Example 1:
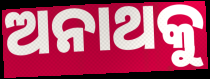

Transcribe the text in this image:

ଅନାଥକୁ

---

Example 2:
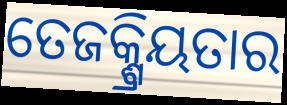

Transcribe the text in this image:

ତେଜକ୍ଶ୍ରିୟତାର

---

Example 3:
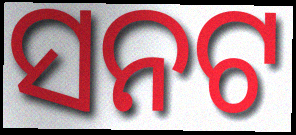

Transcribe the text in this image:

ସନଟ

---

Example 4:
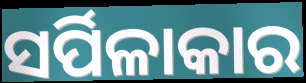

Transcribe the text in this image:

ସର୍ପିଳାକାର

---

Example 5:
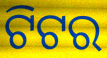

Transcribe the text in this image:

ଟିଟର